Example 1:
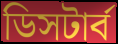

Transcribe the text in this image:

ডিসটার্ব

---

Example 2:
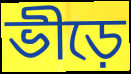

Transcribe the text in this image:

ভীড়ে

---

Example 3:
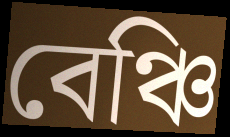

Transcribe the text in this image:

বেঞ্চি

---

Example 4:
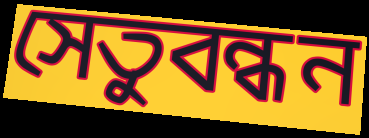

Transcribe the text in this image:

সেতুবন্ধন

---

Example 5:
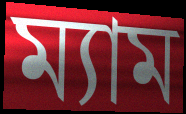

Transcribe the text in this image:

ম্যাম